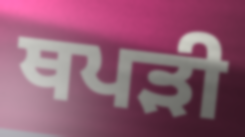
ਥਪੜੀ